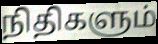
நிதிகளும்